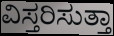
ವಿಸ್ತರಿಸುತ್ತಾ